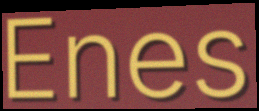
Enes